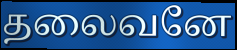
தலைவனே